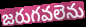
జరుగవలెను